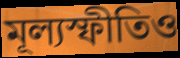
মূল্যস্ফীতিও